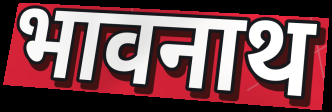
भावनाथ